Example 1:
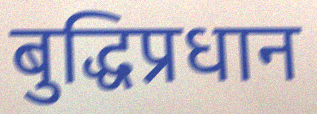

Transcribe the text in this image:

बुद्धिप्रधान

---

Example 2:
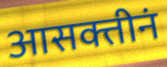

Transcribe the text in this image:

आसक्तीनं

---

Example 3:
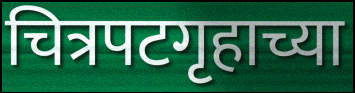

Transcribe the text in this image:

चित्रपटगृहाच्या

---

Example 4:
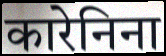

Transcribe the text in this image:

कारेनिना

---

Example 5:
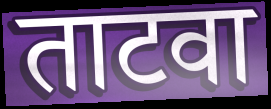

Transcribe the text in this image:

ताटवा